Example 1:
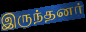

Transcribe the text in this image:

இருந்தனர்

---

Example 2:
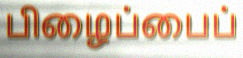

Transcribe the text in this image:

பிழைப்பைப்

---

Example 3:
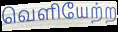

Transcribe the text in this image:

வெளியேற்ற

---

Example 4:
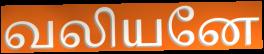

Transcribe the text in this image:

வலியனே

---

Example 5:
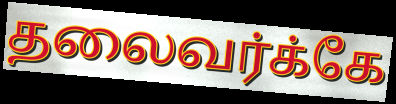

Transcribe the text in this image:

தலைவர்க்கே